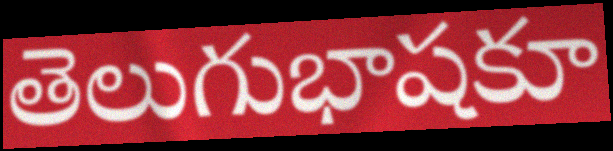
తెలుగుభాషకూ